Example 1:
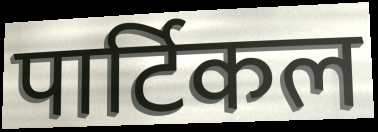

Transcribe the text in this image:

पार्टिकल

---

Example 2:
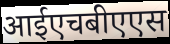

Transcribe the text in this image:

आईएचबीएएस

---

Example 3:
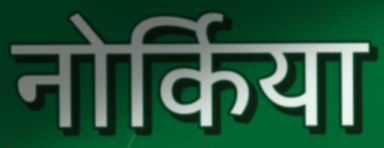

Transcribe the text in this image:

नोर्किया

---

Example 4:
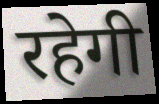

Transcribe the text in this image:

रहेगी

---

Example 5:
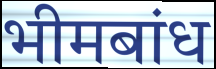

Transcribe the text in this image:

भीमबांध